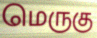
மெருகு